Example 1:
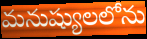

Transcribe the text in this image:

మనుష్యులలోను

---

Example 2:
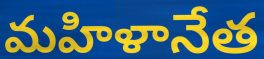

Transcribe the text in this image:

మహిళానేత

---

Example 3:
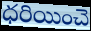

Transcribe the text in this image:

ధరియించె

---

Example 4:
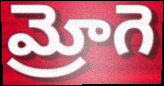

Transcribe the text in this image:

మ్రోగె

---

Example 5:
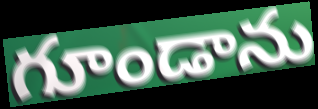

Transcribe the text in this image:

గూండాను